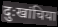
दुःखांचिया